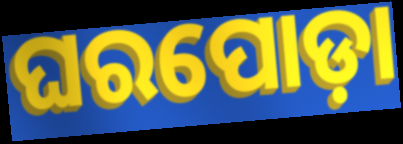
ଘରପୋଡ଼ା